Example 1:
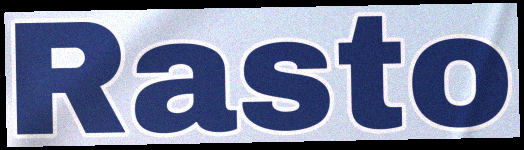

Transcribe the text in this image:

Rasto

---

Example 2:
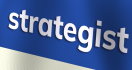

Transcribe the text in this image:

strategist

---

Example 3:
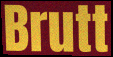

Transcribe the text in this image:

Brutt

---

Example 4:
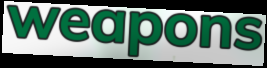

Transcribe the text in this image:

weapons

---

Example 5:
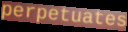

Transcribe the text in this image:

perpetuates